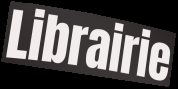
Librairie